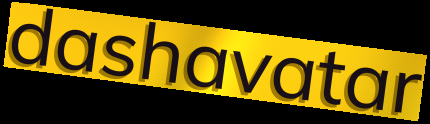
dashavatar